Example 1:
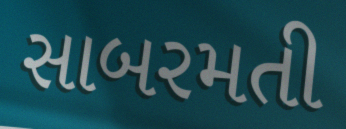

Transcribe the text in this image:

સાબરમતી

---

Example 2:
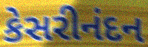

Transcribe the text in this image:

કેસરીનંદન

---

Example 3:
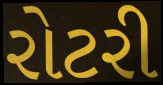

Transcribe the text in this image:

રોટરી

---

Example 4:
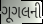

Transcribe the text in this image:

ગૂગલની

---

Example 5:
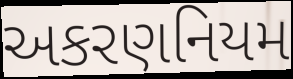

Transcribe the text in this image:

અકરણનિયમ